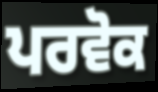
ਪਰਵੋਕ